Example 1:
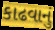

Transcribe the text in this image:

કાઢવાનું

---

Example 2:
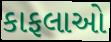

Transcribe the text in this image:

કાફલાઓ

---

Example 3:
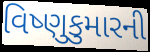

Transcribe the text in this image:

વિષ્ણુકુમારની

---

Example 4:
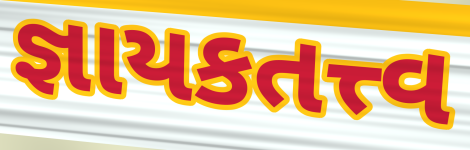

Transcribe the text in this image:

જ્ઞાયકતત્ત્વ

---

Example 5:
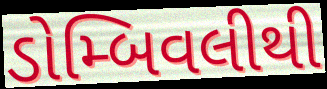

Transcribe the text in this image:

ડોમ્બિવલીથી